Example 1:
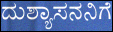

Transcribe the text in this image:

ದುಶ್ಯಾಸನನಿಗೆ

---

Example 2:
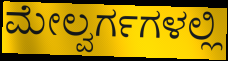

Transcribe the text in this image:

ಮೇಲ್ವರ್ಗಗಳಲ್ಲಿ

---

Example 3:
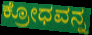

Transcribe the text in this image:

ಕ್ರೋಧವನ್ನ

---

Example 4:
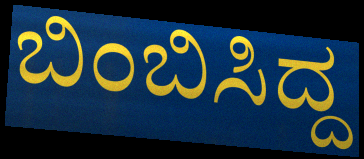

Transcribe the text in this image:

ಬಿಂಬಿಸಿದ್ದ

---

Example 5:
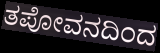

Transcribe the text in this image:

ತಪೋವನದಿಂದ